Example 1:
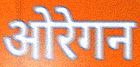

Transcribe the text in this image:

ओरेगन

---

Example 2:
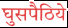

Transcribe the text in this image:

घुसपैठिये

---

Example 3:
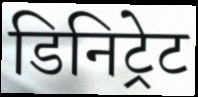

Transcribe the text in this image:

डिनिट्रेट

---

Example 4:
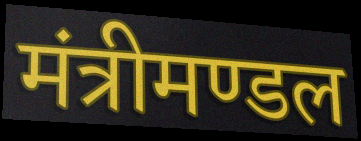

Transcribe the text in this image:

मंत्रीमण्डल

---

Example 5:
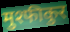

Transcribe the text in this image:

मुश्फीकुर